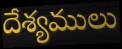
దేశ్యములు